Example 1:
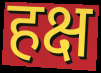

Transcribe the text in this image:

हक्ष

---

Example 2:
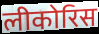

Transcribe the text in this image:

लीकोरिस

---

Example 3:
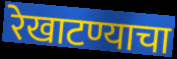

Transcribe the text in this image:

रेखाटण्याचा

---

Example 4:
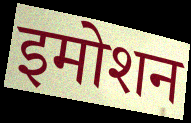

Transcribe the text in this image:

इमोशन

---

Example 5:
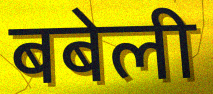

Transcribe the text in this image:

बबेली